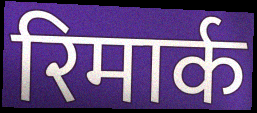
रिमार्क